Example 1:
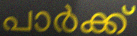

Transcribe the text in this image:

പാർക്ക്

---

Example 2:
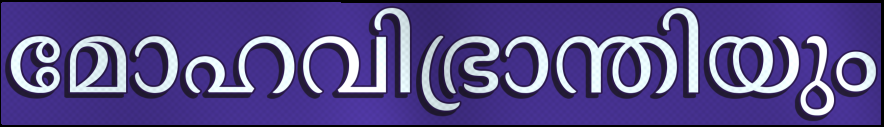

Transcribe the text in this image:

മോഹവിഭ്രാന്തിയും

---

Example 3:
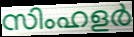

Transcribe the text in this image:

സിംഹളർ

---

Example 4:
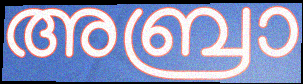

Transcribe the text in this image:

അബ്രാ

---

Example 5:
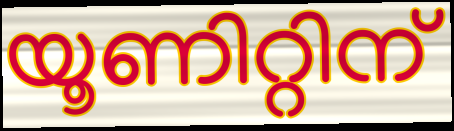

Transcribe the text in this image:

യൂണിറ്റിന്